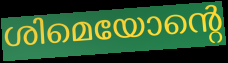
ശിമെയോന്റെ